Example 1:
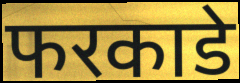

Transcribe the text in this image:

फरकाडे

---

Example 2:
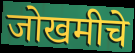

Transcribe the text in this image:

जोखमीचे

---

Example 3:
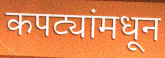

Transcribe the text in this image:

कपट्यांमधून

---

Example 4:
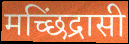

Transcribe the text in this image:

मच्छिंद्रासी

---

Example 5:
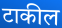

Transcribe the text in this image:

टाकील